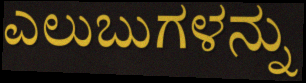
ಎಲುಬುಗಳನ್ನು